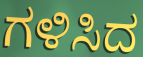
ಗಳಿಸಿದ